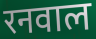
रनवाल